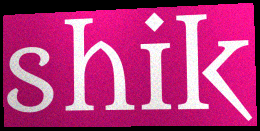
shik